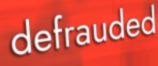
defrauded